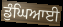
ਡੁੰਘਿਆਈ